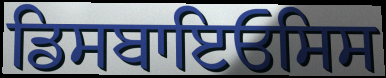
ਡਿਸਬਾਇਓਸਿਸ